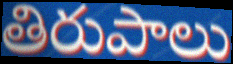
తిరుపాలు